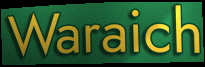
Waraich